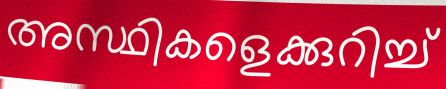
അസ്ഥികളെക്കുറിച്ച്